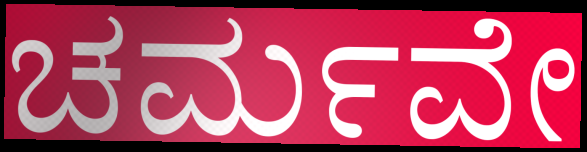
ಚರ್ಮವೇ